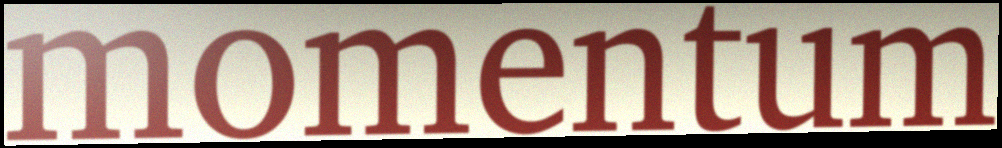
momentum